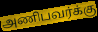
அணிபவர்க்கு